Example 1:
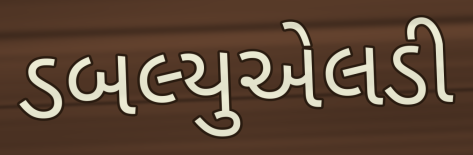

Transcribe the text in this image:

ડબલ્યુએલડી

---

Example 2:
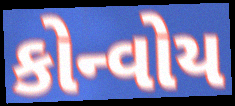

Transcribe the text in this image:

કોન્વોય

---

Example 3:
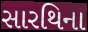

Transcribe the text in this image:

સારથિના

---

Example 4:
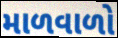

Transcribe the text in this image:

માળવાળો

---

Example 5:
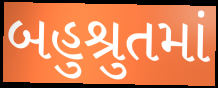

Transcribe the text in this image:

બહુશ્રુતમાં